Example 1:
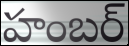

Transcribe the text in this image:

హంబర్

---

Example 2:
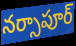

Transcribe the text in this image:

నర్సాపూర్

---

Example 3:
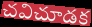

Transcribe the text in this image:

చవిచూడక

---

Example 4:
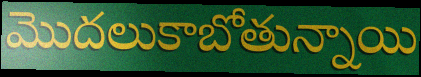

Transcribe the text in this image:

మొదలుకాబోతున్నాయి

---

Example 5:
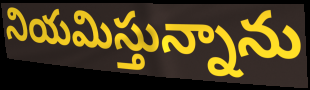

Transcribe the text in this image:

నియమిస్తున్నాను